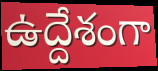
ఉద్దేశంగా